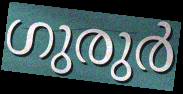
ഗുരുർ